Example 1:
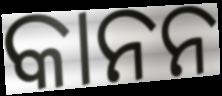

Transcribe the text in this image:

କାନନ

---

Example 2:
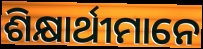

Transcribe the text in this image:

ଶିକ୍ଷାର୍ଥୀମାନେ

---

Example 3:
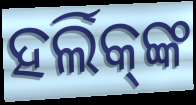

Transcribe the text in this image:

ହର୍ଲିକ୍‌ଙ୍କ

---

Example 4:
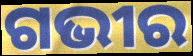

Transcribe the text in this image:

ଗଭୀର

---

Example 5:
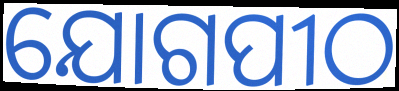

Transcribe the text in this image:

ଯୋଗପୀଠ